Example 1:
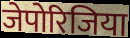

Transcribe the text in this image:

जेपोरिजिया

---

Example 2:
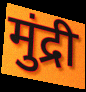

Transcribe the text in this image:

मुंद्री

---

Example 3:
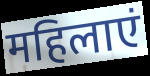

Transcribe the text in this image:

महिलाएं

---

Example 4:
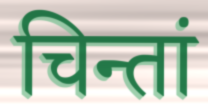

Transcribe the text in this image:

चिन्तां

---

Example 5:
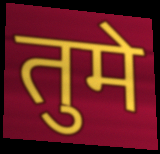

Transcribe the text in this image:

तुमे